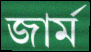
জার্ম